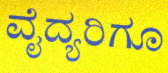
ವೈದ್ಯರಿಗೂ